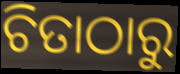
ଚିତାଠାରୁ